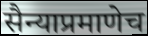
सैन्याप्रमाणेच